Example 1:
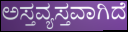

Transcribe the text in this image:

ಅಸ್ತವ್ಯಸ್ತವಾಗಿದೆ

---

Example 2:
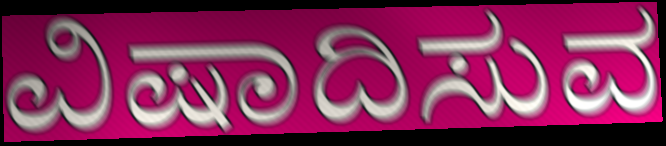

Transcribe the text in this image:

ವಿಷಾದಿಸುವ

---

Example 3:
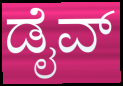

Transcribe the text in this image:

ಡೈವ್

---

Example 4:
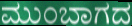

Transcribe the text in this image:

ಮುಂಬಾಗದ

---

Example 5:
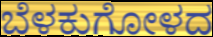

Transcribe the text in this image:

ಬೆಳಕುಗೋಳದ